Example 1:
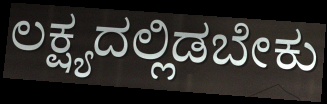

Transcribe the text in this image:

ಲಕ್ಷ್ಯದಲ್ಲಿಡಬೇಕು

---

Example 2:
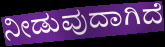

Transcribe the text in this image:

ನೀಡುವುದಾಗಿದೆ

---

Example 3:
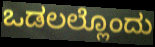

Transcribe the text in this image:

ಒಡಲಲ್ಲೊಂದು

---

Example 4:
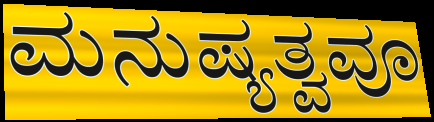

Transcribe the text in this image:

ಮನುಷ್ಯತ್ವವೂ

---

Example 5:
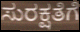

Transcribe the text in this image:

ಸುರಕ್ಷತೆಗೆ